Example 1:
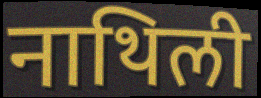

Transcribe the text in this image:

नाथिली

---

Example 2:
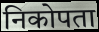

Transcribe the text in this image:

निकोपता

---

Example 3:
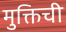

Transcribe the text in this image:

मुक्तिची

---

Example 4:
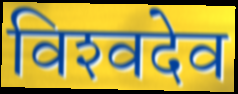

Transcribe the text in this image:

विश्वदेव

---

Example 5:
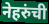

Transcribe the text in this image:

नेहरुंची